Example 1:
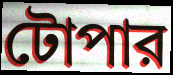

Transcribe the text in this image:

টোপার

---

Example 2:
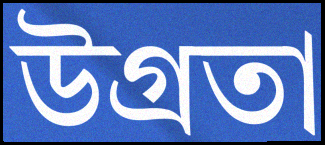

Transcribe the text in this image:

উগ্রতা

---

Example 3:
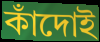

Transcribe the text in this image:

কাঁদোই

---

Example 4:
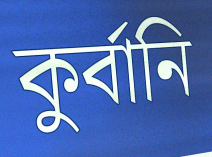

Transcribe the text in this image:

কুর্বানি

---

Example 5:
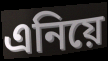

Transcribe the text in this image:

এনিয়ে